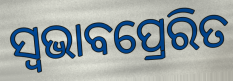
ସ୍ୱଭାବପ୍ରେରିତ